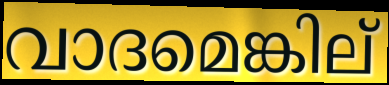
വാദമെങ്കില്